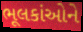
ભૂલકાંઓને